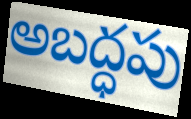
అబద్ధపు